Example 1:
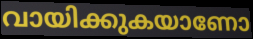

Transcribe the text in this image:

വായിക്കുകയാണോ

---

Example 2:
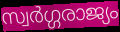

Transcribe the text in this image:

സ്വർഗ്ഗരാജ്യം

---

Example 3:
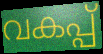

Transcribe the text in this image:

വകപ്പ്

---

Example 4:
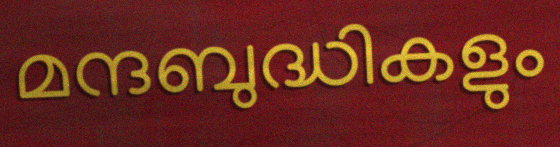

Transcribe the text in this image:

മന്ദബുദ്ധികളും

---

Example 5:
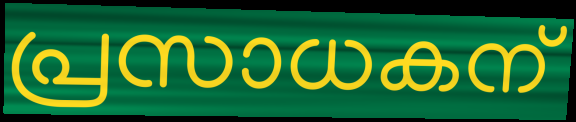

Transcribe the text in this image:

പ്രസാധകന്